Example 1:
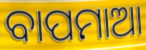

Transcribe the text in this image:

ବାପମାଆ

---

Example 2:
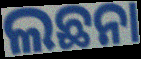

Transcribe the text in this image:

ଲଛନା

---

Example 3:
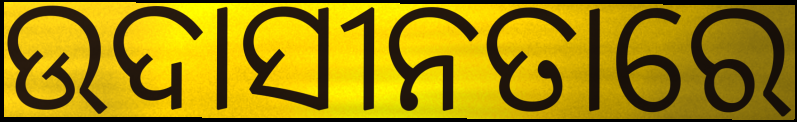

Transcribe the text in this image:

ଉଦାସୀନତାରେ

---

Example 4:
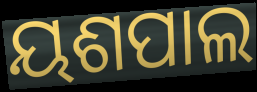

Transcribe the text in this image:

ୟଶପାଲ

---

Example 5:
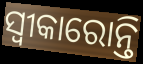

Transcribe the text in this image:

ସ୍ଵୀକାରୋନ୍ତି